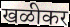
खळीकर